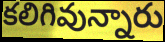
కలిగివున్నారు